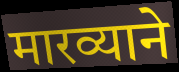
मारव्याने